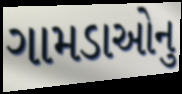
ગામડાઓનુ